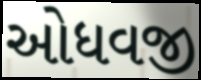
ઓધવજી